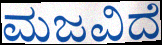
ಮಜವಿದೆ